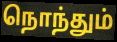
நொந்தும்